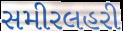
સમીરલહરી